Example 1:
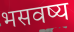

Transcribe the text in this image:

भसवष्य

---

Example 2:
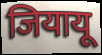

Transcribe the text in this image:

जियायू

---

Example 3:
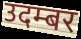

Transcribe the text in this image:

उदम्बर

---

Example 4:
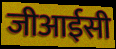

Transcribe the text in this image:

जीआईसी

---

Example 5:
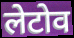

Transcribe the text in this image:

लेटोव